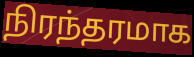
நிரந்தரமாக